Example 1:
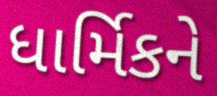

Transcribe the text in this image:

ધાર્મિકને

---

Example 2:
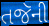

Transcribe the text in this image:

તજૅની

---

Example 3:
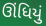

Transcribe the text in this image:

ઊંધિયું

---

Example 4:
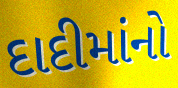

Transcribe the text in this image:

દાદીમાંનો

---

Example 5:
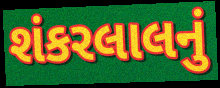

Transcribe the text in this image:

શંકરલાલનું